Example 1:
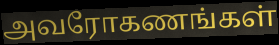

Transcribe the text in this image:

அவரோகணங்கள்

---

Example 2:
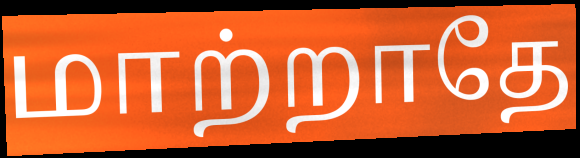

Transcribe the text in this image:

மாற்றாதே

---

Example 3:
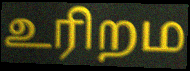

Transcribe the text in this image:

உரிறம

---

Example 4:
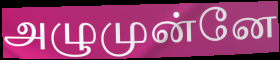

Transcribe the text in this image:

அழுமுன்னே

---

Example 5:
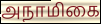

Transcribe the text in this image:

அநாமிகை